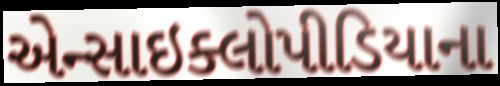
એન્સાઇક્લોપીડિયાના